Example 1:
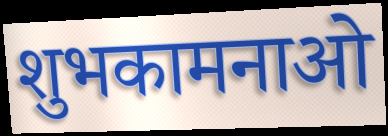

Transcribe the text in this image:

शुभकामनाओ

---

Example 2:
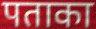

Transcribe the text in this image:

पताका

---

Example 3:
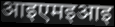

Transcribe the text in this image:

आइएमइआइ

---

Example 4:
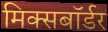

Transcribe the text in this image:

मिक्सबॉर्डर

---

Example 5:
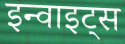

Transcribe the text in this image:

इन्वाइट्स